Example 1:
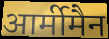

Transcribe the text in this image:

आर्मीमैन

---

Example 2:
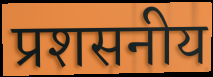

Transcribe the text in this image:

प्रशसनीय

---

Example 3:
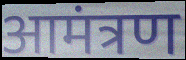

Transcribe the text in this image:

आमंत्रण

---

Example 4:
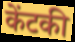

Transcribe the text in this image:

केंटकी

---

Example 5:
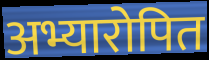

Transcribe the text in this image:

अभ्यारोपित